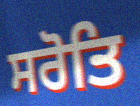
ਸਰੋਤਿ